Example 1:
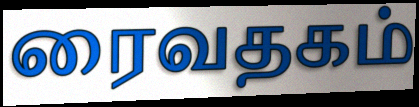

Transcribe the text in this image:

ரைவதகம்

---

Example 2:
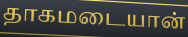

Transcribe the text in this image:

தாகமடையான்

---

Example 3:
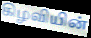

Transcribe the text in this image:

கிழவியின்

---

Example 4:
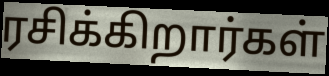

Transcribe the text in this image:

ரசிக்கிறார்கள்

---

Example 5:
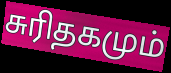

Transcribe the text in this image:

சுரிதகமும்